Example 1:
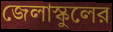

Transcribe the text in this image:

জেলাস্কুলের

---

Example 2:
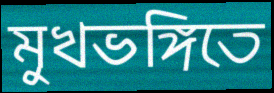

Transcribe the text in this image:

মুখভঙ্গিতে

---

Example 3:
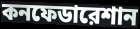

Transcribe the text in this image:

কনফেডারেশান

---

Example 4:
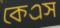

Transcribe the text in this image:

কেএস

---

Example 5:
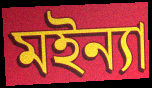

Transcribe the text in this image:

মইন্যা